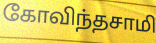
கோவிந்தசாமி